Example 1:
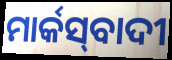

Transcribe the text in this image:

ମାର୍କସ୍‍ବାଦୀ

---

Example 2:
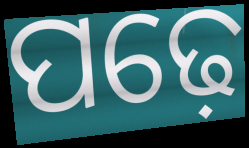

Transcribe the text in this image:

ପଢ଼େ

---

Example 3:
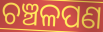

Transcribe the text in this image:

ଚଞ୍ଚଳପଣ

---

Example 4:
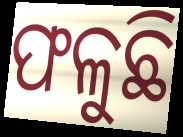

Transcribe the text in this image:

ଫଳୁଛି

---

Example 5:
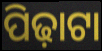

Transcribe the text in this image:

ପିଢ଼ାଟା